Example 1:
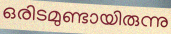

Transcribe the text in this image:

ഒരിടമുണ്ടായിരുന്നു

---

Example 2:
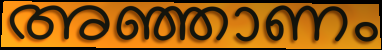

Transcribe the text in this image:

അഞ്ഞാണം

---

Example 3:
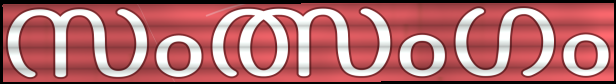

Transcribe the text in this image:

സംത്സംഗം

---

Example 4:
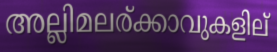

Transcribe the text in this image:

അല്ലിമലര്ക്കാവുകളില്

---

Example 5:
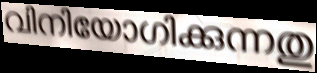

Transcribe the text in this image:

വിനിയോഗിക്കുന്നതു